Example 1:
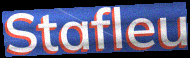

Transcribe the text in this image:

Stafleu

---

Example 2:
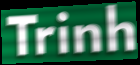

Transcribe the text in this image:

Trinh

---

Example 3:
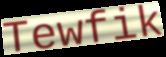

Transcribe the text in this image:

Tewfik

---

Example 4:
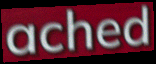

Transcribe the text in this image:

ached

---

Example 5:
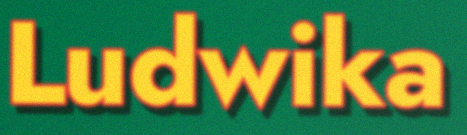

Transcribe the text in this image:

Ludwika